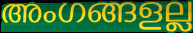
അംഗങ്ങളല്ല